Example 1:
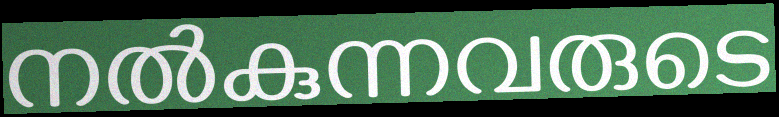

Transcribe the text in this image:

നൽകുന്നവരുടെ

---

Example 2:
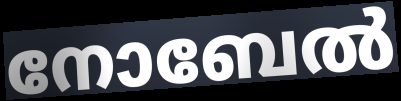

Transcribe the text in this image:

നോബേൽ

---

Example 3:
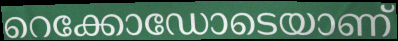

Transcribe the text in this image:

റെക്കോഡോടെയാണ്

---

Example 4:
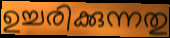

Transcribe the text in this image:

ഉച്ചരിക്കുന്നതു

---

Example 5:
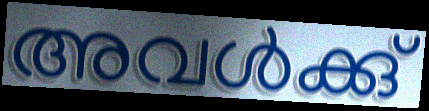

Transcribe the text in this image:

അവൾക്കു്